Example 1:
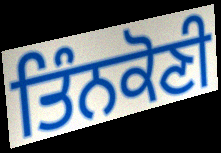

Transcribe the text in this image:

ਤਿੰਨਕੋਣੀ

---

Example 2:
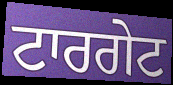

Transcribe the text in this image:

ਟਾਰਗੇਟ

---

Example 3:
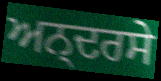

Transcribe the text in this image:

ਅਨ੍ਦਰਸੇ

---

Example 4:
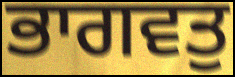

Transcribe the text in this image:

ਭਾਗਵਤੁ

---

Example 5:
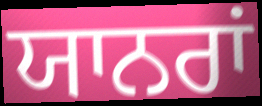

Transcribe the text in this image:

ਯਾਨਰਾਂ